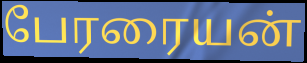
பேரரையன்